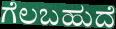
ಗೆಲಬಹುದೆ